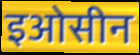
इओसीन